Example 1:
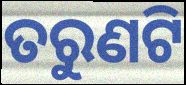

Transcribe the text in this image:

ତରୁଣଟି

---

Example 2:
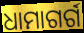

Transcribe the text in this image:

ଧାମାଗର୍ଗ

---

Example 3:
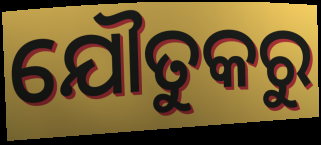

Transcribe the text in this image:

ଯୌତୁକରୁ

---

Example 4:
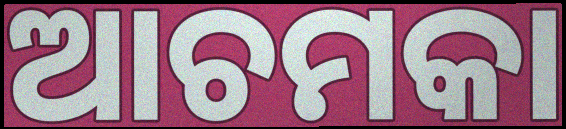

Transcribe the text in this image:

ଆଚମକା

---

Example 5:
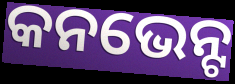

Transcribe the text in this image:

କନଭେନ୍ଟ